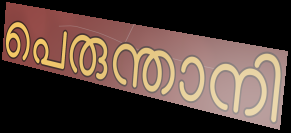
പെരുന്താനി